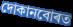
দোকানবোৰত